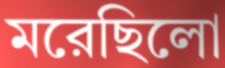
মরেছিলো